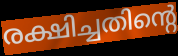
രക്ഷിച്ചതിന്റെ